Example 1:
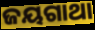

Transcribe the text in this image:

ଜୟଗାଥା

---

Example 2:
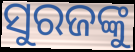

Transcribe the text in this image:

ସୁରଜଙ୍କୁ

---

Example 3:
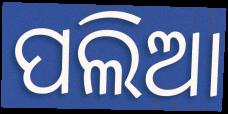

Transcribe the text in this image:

ପଲିଆ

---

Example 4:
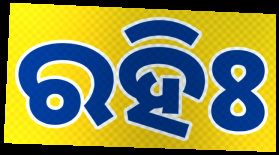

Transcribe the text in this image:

ରହିଃ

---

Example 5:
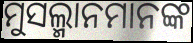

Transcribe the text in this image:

ମୁସଲ୍ମାନମାନଙ୍କ